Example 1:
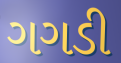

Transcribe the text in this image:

ગગડી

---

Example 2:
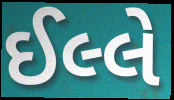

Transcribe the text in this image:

ઈલ્લે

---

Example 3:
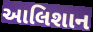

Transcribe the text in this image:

આલિશાન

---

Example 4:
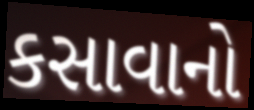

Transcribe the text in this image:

કસાવાનો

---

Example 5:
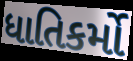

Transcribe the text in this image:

ધાતિકર્મો